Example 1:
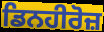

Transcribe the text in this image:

ਡਿਨਹੀਰੋਜ਼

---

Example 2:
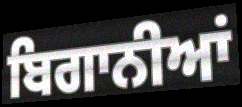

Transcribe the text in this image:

ਬਿਗਾਨੀਆਂ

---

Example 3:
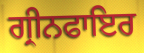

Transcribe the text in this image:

ਗ੍ਰੀਨਫਾਇਰ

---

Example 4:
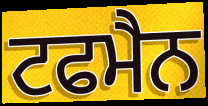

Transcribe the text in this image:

ਟਫਮੈਨ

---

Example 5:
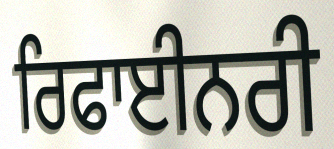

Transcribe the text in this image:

ਰਿਫਾਈਨਰੀ